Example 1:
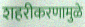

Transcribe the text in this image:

शहरीकरणामुळे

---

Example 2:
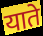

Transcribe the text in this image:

याते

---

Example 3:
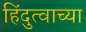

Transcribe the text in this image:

हिंदुत्वाच्या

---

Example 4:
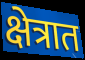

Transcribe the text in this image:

क्षेत्रात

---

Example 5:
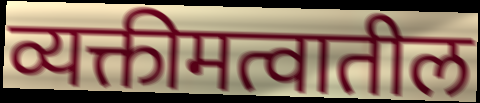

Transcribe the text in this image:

व्यक्तीमत्वातील